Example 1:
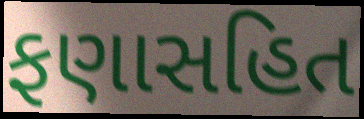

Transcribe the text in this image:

ફણાસહિત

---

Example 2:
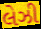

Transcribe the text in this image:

લેઝી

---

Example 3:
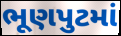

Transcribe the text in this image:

ભૂણપુટમાં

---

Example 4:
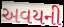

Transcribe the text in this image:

અવયની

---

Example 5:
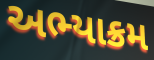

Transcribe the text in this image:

અભ્યાક્રમ